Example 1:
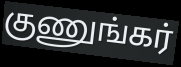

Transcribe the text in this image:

குணுங்கர்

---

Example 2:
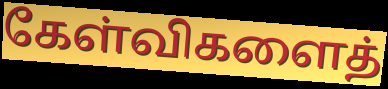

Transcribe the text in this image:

கேள்விகளைத்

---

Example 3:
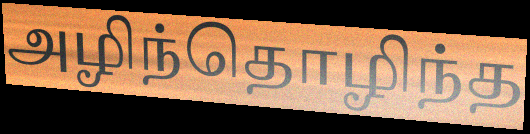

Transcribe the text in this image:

அழிந்தொழிந்த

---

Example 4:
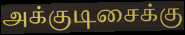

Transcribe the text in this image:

அக்குடிசைக்கு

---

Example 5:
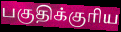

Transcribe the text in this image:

பகுதிக்குரிய